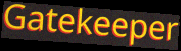
Gatekeeper